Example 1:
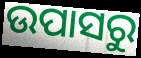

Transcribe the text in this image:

ଉପାସରୁ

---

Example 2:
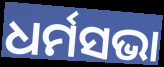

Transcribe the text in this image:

ଧର୍ମସଭା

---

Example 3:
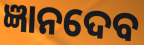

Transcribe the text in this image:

ଜ୍ଞାନଦେବ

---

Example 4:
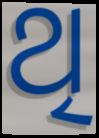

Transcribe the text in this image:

ଥି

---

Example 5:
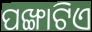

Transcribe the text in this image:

ପଙ୍ଖାଟିଏ